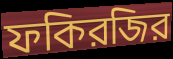
ফকিরজির